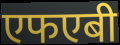
एफएबी